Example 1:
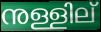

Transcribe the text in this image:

നുള്ളില്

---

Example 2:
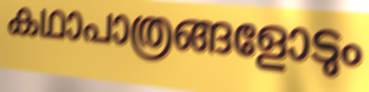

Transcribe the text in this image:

കഥാപാത്രങ്ങളോടും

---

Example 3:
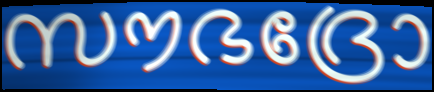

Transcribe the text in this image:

സൗഭദ്രോ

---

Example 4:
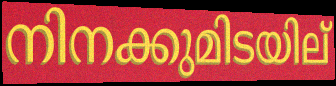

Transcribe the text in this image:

നിനക്കുമിടയില്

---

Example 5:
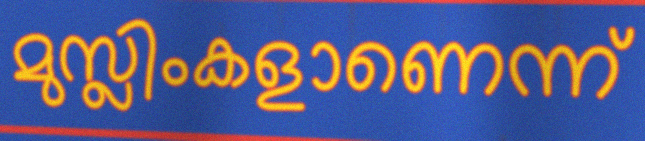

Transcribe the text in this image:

മുസ്ലിംകളാണെന്ന്